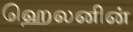
ஹெலனின்